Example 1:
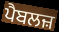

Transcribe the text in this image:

ਪੈਬਲਜ਼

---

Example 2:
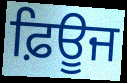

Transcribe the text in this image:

ਫ਼ਿਊਜ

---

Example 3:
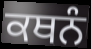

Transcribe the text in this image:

ਕਥਨੰ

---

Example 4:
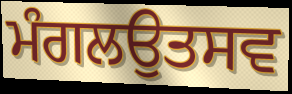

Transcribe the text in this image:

ਮੰਗਲਉਤਸਵ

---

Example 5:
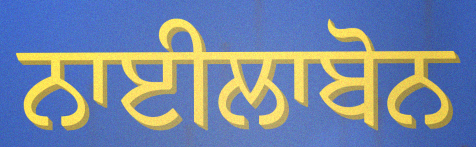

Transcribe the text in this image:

ਨਾਈਲਾਬੋਨ